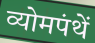
व्योमपंथें